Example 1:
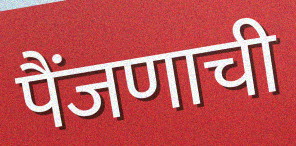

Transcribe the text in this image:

पैंजणाची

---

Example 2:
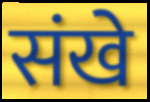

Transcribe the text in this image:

संखे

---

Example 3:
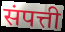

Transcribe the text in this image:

संपत्ती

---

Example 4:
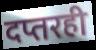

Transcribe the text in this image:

दप्तरही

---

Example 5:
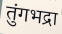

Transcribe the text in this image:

तुंगभद्रा